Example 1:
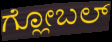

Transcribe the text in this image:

ಗ್ಲೋಬಲ್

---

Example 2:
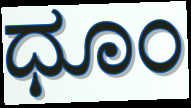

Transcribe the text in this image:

ಧೂಂ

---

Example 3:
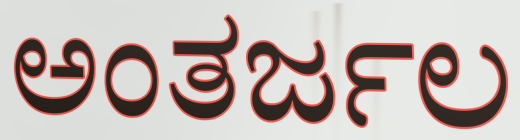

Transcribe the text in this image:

ಅಂತರ್ಜಲ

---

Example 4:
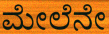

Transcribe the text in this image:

ಮೇಲೆನೇ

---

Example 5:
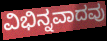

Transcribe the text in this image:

ವಿಭಿನ್ನವಾದವು